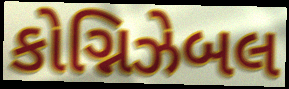
કોગ્નિઝેબલ